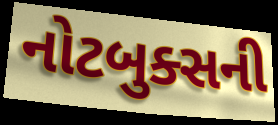
નોટબુક્સની